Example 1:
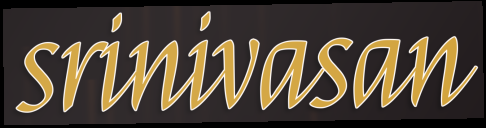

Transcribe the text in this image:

srinivasan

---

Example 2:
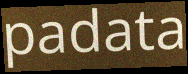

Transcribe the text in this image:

padata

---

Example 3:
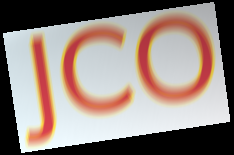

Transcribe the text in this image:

JCO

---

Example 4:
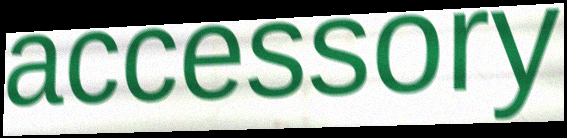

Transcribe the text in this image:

accessory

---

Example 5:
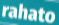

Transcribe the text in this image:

rahato